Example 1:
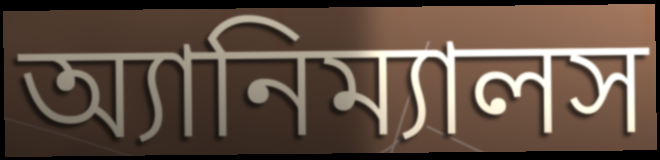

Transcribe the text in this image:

অ্যানিম্যালস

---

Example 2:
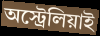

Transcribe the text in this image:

অস্ট্রেলিয়াই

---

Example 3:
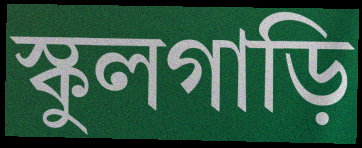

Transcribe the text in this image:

স্কুলগাড়ি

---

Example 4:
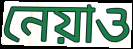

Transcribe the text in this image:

নেয়াও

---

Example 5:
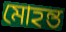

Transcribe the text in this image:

মোহন্ত